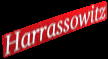
Harrassowitz